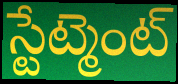
స్టేట్మెంట్